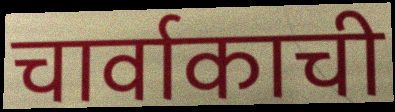
चार्वाकाची